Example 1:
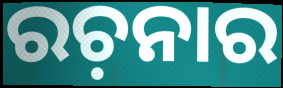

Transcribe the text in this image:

ରଚ଼ନାର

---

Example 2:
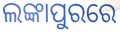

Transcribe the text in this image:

ଲଙ୍କାପୁରରେ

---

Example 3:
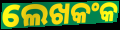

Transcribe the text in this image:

ଲେଖକଂକ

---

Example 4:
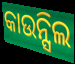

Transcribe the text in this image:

କାଉନ୍ସିଲ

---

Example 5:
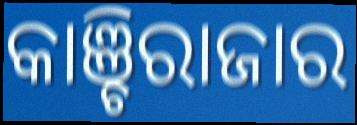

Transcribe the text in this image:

କାଞ୍ଚିରାଜାର